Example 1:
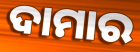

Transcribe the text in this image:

ଦାମାର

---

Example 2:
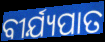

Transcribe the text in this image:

ବୀର୍ଯ୍ୟପାତ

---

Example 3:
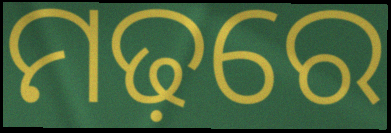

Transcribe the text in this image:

ମଢ଼ରେ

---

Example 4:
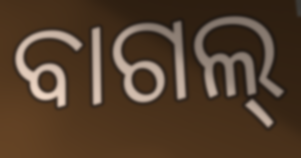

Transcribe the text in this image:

ବାଗଲ୍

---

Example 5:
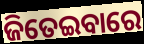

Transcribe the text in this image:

ଜିତେଇବାରେ